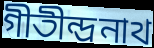
গীতীন্দ্রনাথ